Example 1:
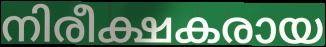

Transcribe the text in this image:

നിരീക്ഷകരായ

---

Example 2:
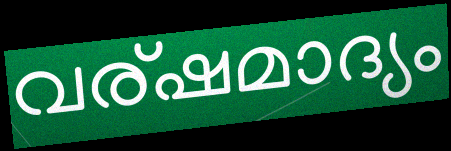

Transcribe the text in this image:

വര്ഷമാദ്യം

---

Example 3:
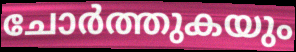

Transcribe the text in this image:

ചോർത്തുകയും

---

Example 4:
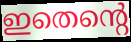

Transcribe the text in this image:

ഇതെന്റെ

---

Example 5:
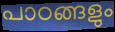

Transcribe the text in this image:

പാഠങ്ങളും